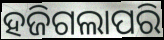
ହଜିଗଲାପରି